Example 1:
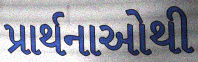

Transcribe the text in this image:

પ્રાર્થનાઓથી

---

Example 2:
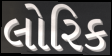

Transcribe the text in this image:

લોરિક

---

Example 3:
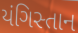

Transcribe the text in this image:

યંગિસ્તાન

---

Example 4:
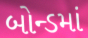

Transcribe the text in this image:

બોન્ડમાં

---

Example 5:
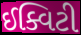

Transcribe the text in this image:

ઈક્વિટી